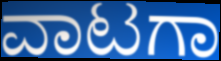
ವಾಟಗಾ